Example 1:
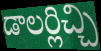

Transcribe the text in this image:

డాలర్లిచ్చి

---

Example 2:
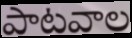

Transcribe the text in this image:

పాటవాల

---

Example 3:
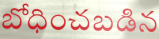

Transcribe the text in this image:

బోధించబడిన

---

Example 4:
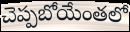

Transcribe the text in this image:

చెప్పబోయేంతలో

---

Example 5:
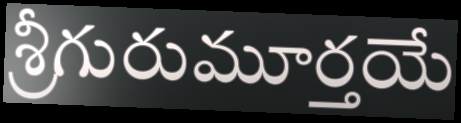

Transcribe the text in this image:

శ్రీగురుమూర్తయే